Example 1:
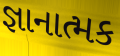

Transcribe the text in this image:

જ્ઞાનાત્મક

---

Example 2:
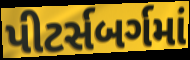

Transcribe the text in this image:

પીટર્સબર્ગમાં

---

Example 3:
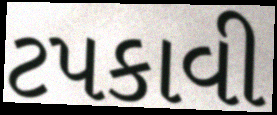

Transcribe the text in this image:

ટપકાવી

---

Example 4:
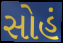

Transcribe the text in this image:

સોહં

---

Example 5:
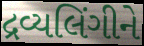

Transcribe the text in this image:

દ્રવ્યલિંગીને